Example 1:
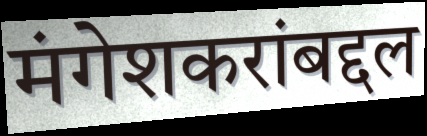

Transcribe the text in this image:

मंगेशकरांबद्दल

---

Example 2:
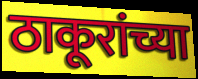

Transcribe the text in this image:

ठाकूरांच्या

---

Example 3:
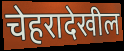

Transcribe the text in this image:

चेहरादेखील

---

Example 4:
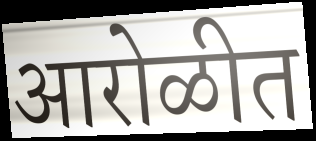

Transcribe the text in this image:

आरोळीत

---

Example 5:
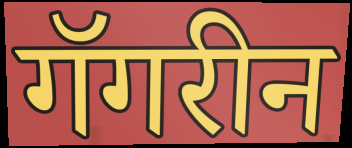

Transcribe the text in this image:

गॅगरीन